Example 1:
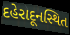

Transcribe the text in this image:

દહેરાદૂનસ્થિત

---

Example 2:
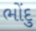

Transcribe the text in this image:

ભોંદુ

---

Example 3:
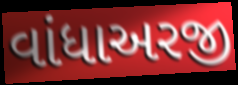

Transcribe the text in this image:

વાંધાઅરજી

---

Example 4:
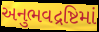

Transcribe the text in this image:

અનુભવદ્રષ્ટિમાં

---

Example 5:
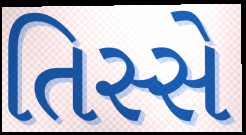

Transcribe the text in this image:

તિસ્સે